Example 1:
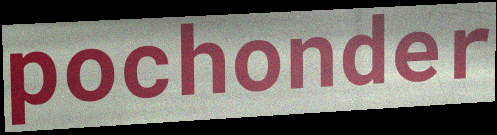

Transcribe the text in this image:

pochonder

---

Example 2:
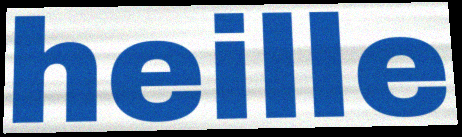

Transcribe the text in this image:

heille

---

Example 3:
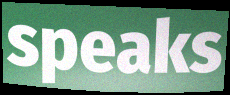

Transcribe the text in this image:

speaks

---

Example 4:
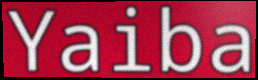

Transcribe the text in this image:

Yaiba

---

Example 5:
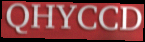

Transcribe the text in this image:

QHYCCD